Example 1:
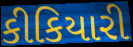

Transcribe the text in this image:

કીકિયારી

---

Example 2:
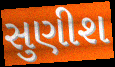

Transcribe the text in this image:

સુણીશ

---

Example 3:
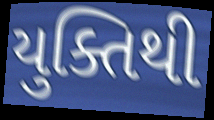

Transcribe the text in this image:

યુક્તિથી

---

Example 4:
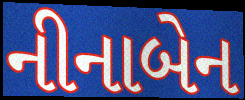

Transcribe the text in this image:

નીનાબેન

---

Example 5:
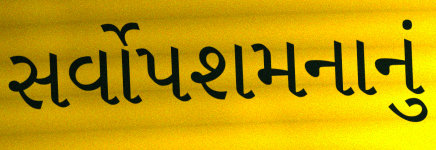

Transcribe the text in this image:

સર્વોપશમનાનું